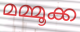
മമ്മൂക്ക